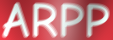
ARPP